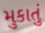
મુકાતું